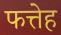
फत्तेह